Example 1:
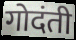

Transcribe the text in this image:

गोदंती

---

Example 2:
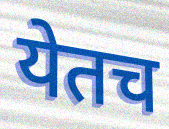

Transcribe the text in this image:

येतच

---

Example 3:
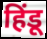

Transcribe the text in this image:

हिंडू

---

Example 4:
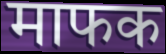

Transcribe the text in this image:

माफक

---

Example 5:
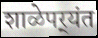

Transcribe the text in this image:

शाळेपर्यंत